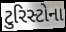
ટુરિસ્ટોના